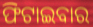
ଫିଟାଇବାର